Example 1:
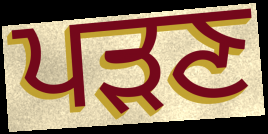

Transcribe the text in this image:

ਪੜਣ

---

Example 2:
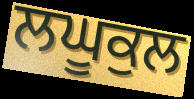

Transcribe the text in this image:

ਲਘੂਕੁਲ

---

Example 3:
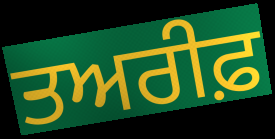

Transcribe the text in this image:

ਤਅਰੀਫ਼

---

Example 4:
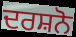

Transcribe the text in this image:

ਦਰਸ਼ਨੋ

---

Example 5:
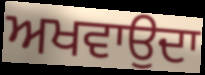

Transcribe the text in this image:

ਅਖਵਾਉਦਾ